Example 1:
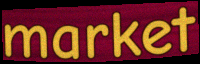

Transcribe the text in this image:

market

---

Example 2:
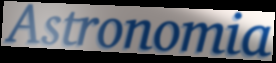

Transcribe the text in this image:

Astronomia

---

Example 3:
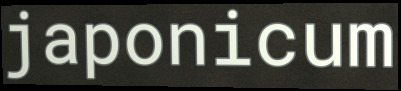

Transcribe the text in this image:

japonicum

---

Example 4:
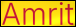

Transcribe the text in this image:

Amrit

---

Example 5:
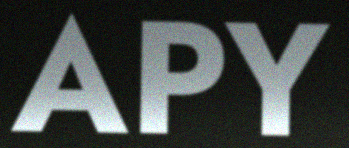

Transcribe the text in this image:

APY